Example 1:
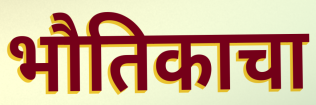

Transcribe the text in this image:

भौतिकाचा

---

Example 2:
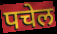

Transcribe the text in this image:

पचेल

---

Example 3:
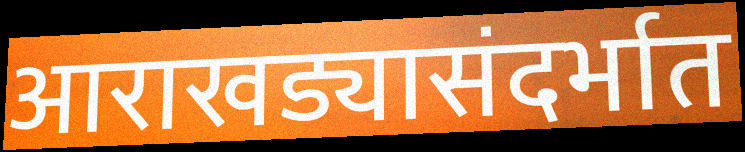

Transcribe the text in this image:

आराखड्यासंदर्भात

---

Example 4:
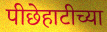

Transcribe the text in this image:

पीछेहाटीच्या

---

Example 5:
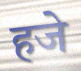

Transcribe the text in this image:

हजे